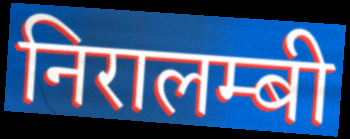
निरालम्बी